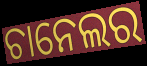
ଚାନେଲର